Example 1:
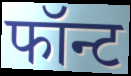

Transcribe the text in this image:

फॉन्ट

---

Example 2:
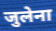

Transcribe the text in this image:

जुलेना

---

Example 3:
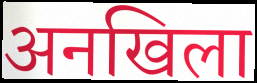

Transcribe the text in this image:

अनखिला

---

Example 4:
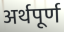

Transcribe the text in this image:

अर्थपूर्ण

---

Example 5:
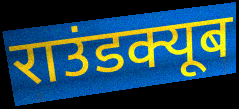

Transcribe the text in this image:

राउंडक्यूब